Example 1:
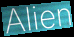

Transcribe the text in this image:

Alien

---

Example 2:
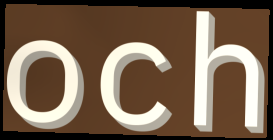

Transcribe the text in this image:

och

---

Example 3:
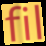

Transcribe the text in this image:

fil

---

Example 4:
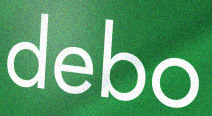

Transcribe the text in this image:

debo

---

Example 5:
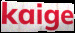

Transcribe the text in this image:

kaige